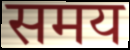
समय